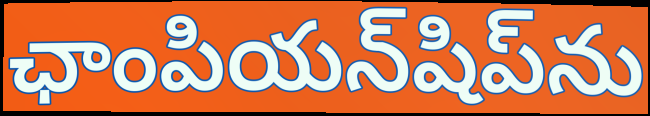
ఛాంపియన్‌షిప్‌ను